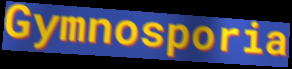
Gymnosporia